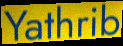
Yathrib